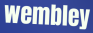
wembley